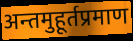
अन्तमुहूर्तप्रमाण